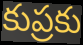
కుప్రకు